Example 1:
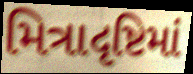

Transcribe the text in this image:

મિત્રાદૃષ્ટિમાં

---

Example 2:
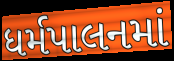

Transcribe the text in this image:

ધર્મપાલનમાં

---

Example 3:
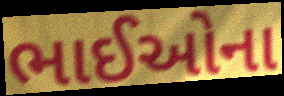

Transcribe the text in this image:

ભાઈઓના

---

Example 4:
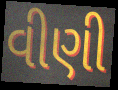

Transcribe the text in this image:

વીણી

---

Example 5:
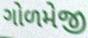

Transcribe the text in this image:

ગોળમેજી